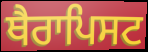
ਥੈਰਾਪਿਸਟ